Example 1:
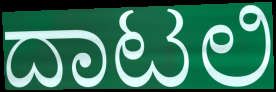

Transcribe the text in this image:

ದಾಟಲಿ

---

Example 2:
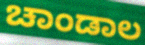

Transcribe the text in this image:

ಚಾಂಡಾಲ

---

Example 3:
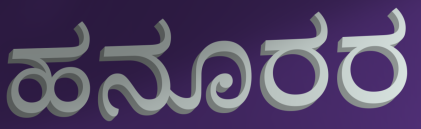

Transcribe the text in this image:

ಹನೂರರ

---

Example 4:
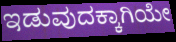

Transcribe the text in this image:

ಇಡುವುದಕ್ಕಾಗಿಯೇ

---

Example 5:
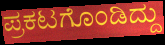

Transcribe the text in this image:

ಪ್ರಕಟಗೊಂಡಿದ್ದು